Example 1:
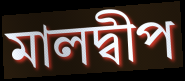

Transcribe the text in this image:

মালদ্বীপ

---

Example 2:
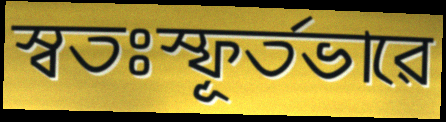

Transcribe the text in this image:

স্বতঃস্ফূৰ্তভাৱে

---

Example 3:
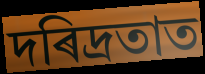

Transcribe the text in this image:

দৰিদ্ৰতাত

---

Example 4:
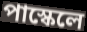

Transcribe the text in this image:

পাস্কেলে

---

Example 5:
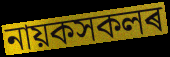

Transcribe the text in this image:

নায়কসকলৰ